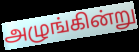
அழுங்கின்று